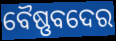
ବୈଷ୍ଣବଦେର